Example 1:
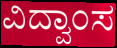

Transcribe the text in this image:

ವಿದ್ವಾಂಸ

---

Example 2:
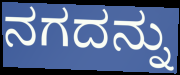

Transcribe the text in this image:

ನಗದನ್ನು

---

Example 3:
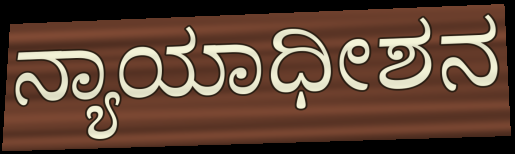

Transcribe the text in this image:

ನ್ಯಾಯಾಧೀಶನ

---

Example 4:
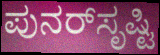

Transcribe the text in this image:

ಪುನರ್‌ಸೃಷ್ಟಿ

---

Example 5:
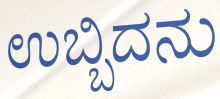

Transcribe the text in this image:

ಉಬ್ಬಿದನು